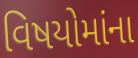
વિષયોમાંના